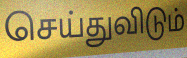
செய்துவிடும்